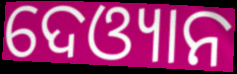
ଦେଓ୍ୟାନ